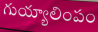
గుయ్యాలింపం